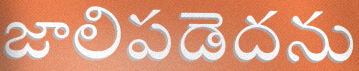
జాలిపడెదను